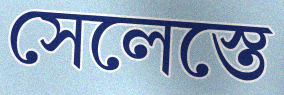
সেলেস্তে